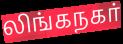
லிங்கநகர்